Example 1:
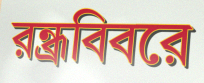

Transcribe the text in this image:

রন্ধ্রবিবরে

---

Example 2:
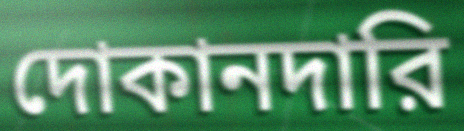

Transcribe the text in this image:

দোকানদারি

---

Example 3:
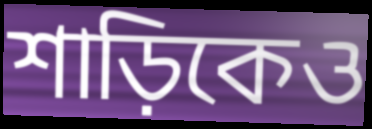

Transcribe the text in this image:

শাড়িকেও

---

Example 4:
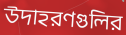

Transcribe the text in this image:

উদাহরণগুলির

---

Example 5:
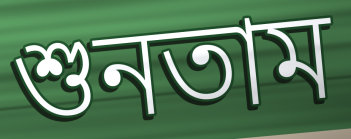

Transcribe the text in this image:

শুনতাম